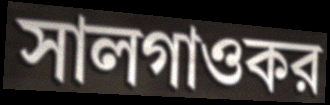
সালগাওকর